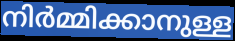
നിർമ്മിക്കാനുള്ള